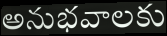
అనుభవాలకు